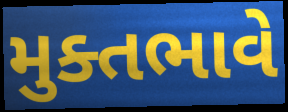
મુક્તભાવે